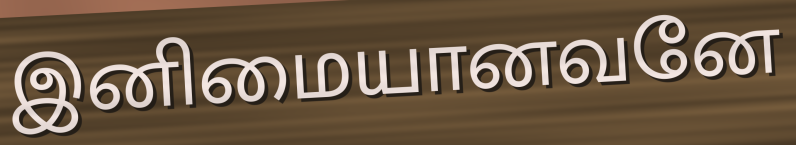
இனிமையானவனே